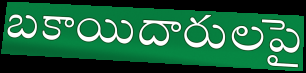
బకాయిదారులపై